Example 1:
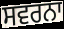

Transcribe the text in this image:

ਸਵਰਨਾ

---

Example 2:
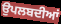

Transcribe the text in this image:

ਉਪਲਬਦੀਆਂ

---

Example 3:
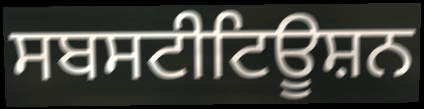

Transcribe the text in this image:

ਸਬਸਟੀਟਿਊਸ਼ਨ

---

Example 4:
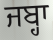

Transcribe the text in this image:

ਜਬ੍ਹਾ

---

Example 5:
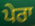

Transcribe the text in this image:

ਪੇਰਾ